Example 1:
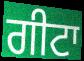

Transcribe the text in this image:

ਗੀਟਾ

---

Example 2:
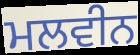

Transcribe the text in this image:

ਮਲਵੀਨ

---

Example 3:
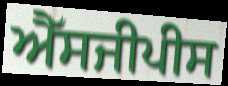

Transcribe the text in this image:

ਐੱਸਜੀਪੀਸ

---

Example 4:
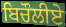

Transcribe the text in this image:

ਬਿਚੌਲੀਏ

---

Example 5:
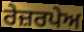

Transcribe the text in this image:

ਰੇਜ਼ਰਪੇਅ